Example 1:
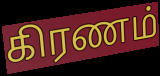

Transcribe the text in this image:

கிரணம்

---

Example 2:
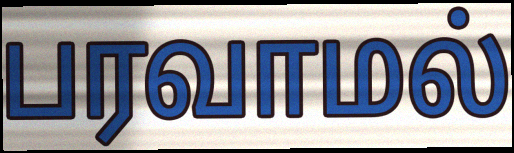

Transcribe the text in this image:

பரவாமல்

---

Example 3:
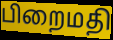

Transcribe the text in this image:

பிறைமதி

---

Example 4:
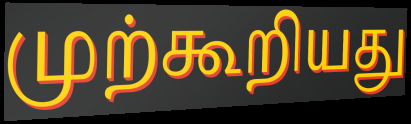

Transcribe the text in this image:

முற்கூறியது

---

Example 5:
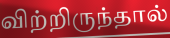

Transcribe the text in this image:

விற்றிருந்தால்